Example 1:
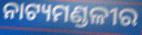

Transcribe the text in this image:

ନାଟ୍ୟମଣ୍ଡଳୀର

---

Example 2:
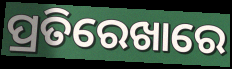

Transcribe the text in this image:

ପ୍ରତିରେଖାରେ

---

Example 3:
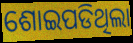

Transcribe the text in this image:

ଶୋଇପଡିଥିଲା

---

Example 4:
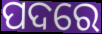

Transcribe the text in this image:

ପଦରେ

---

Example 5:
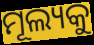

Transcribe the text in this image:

ମୂଲ୍ୟକୁ